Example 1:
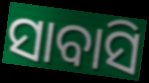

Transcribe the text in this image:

ସାବାସି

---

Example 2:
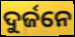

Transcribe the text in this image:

ଦୁର୍ଜନେ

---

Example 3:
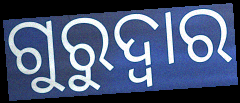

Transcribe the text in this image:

ଗୁରୁଦ୍ଵାର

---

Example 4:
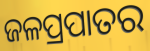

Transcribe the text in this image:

ଜଳପ୍ରପାତର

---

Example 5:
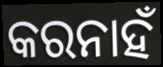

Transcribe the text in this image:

କରନାହଁ